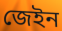
জেইন